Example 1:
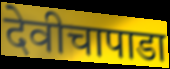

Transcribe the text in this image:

देवीचापाडा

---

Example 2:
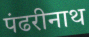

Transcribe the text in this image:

पंढरीनाथ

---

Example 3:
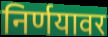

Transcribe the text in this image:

निर्णयावर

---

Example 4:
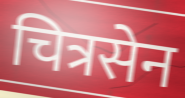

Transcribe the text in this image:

चित्रसेन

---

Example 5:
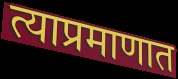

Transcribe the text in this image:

त्याप्रमाणात